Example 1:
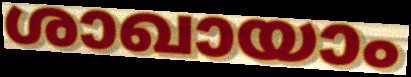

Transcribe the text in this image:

ശാഖായാം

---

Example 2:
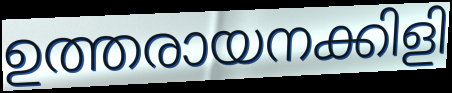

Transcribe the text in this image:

ഉത്തരായനക്കിളി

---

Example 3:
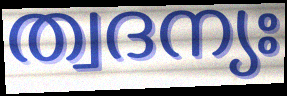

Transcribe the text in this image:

ത്വദന്യഃ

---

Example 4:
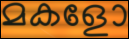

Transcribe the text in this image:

മകളോ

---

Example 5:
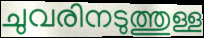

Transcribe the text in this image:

ചുവരിനടുത്തുള്ള